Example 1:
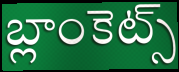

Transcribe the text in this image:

బ్లాంకెట్స్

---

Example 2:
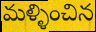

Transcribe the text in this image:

మళ్ళించిన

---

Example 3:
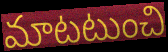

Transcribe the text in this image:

మాటటుంచి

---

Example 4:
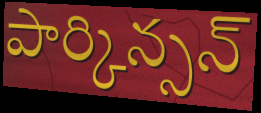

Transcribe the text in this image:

పార్కిన్సన్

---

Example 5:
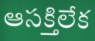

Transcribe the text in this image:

ఆసక్తిలేక